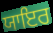
ਯਾਇਰ